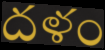
దళం